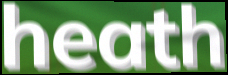
heath